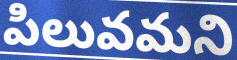
పిలువమని